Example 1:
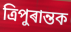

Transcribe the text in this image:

ত্ৰিপুৰান্তক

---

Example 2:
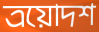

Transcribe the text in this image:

ত্ৰয়োদশ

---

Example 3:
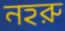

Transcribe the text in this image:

নহৰু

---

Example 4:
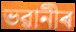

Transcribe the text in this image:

ভৱানীৰ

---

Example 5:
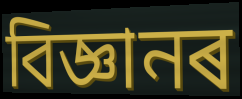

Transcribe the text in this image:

বিজ্ঞানৰ